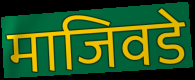
माजिवडे